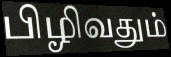
பிழிவதும்